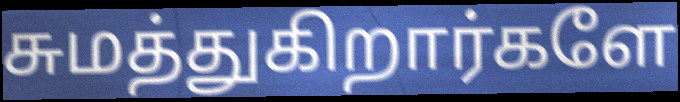
சுமத்துகிறார்களே